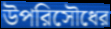
উপরিসৌধের